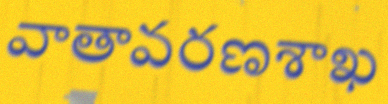
వాతావరణశాఖ